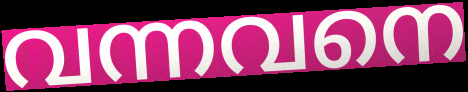
വന്നവനെ